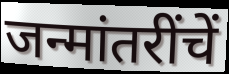
जन्मांतरींचें